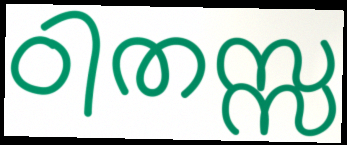
ഠിതസ്സ